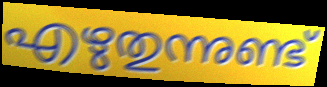
എഴുതുന്നുണ്ട്